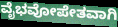
ವೈಭವೋಪೇತವಾಗಿ